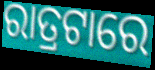
ରାତ୍ରଟାରେ